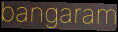
bangaram